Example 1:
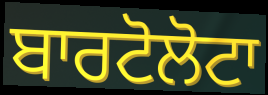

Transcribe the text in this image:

ਬਾਰਟੋਲੋਟਾ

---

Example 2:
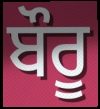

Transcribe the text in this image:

ਬੌਰੂ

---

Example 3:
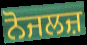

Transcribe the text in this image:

ਨੋਜਲਜ਼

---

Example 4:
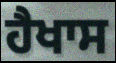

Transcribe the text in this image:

ਹੈਖਾਸ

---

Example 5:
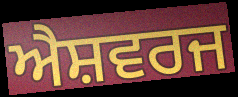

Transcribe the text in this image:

ਐਸ਼ਵਰਜ